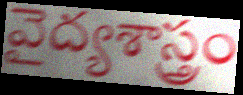
వైద్యశాస్త్రం